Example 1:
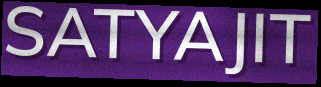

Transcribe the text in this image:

SATYAJIT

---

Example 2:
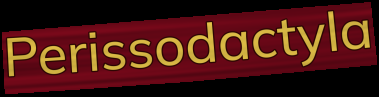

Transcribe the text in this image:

Perissodactyla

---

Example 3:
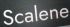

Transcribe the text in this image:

Scalene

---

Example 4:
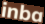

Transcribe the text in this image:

inba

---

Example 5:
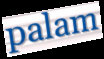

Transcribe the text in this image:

palam